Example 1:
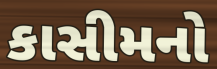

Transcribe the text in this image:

કાસીમનો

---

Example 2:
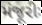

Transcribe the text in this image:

મંજૂરીઃ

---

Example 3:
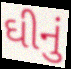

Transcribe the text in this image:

ઘીનું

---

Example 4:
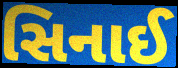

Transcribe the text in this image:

સિનાઈ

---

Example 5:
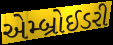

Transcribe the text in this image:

એમ્બ્રોઈડરી